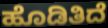
ಹೊಡಿತಿದೆ